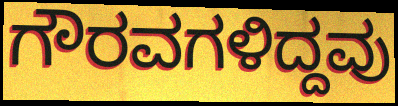
ಗೌರವಗಳಿದ್ದವು